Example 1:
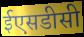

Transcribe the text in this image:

ईएसडीसी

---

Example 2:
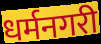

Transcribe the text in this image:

धर्मनगरी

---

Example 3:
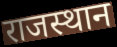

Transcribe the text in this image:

राजस्थान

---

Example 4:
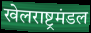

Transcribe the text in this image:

खेलराष्ट्रमंडल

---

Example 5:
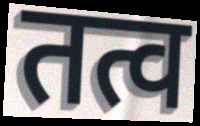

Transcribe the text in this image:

तत्व